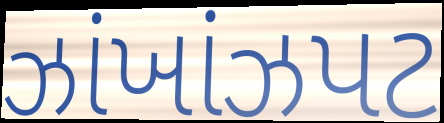
ઝાંખાંઝપટ